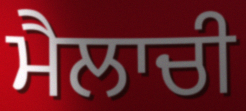
ਮੈਲਾਚੀ